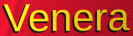
Venera